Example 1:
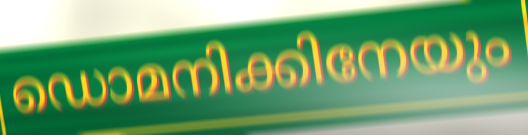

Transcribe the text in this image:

ഡൊമനിക്കിനേയും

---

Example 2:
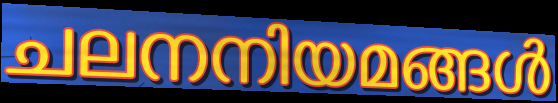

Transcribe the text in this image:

ചലനനിയമങ്ങൾ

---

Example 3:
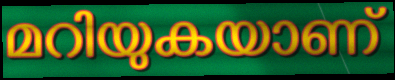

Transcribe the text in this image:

മറിയുകയാണ്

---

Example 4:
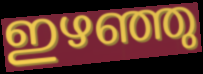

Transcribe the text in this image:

ഇഴഞ്ഞു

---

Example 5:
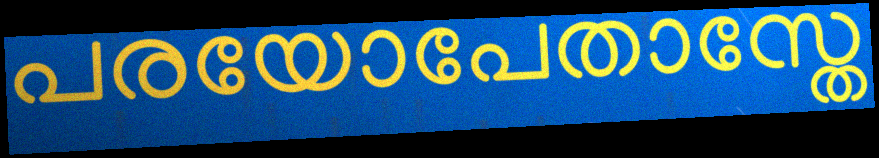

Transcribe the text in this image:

പരയോപേതാസ്തേ